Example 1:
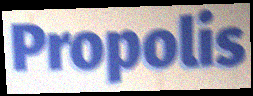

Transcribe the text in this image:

Propolis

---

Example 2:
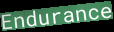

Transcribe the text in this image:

Endurance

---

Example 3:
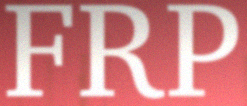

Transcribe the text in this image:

FRP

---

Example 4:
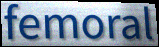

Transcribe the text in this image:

femoral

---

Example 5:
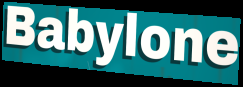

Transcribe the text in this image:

Babylone